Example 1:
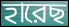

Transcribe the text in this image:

হারেছ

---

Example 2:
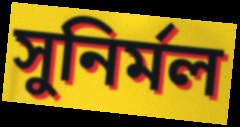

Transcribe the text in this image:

সুনির্মল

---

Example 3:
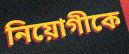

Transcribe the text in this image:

নিয়োগীকে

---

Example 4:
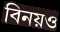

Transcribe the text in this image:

বিনয়ও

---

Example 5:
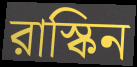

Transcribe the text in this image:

রাস্কিন